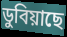
ডুবিয়াছে